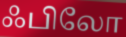
ஃபிலோ